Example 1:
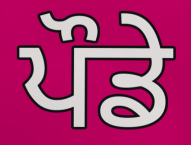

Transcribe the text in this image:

ਪੌਡੇ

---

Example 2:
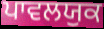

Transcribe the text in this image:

ਪਾਵਲਯੁਕ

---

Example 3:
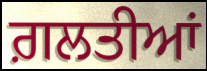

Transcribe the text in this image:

ਗ਼ਲਤੀਆਂ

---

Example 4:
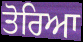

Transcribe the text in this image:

ਤੋਰਿਆ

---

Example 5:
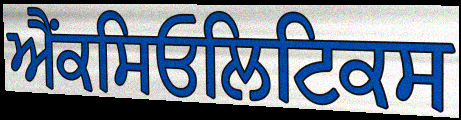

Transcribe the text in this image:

ਐਂਕਸਿਓਲਿਟਿਕਸ